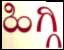
ಹಿಗ್ಗಿ